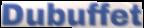
Dubuffet